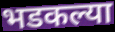
भडकल्या